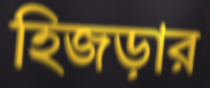
হিজড়ার